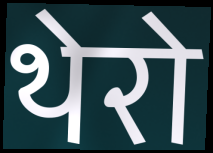
थेरो